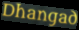
Dhangad